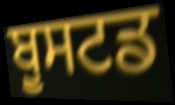
ਬੂਸਟਡ